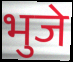
भुजे